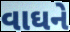
વાઘને